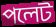
পলেট